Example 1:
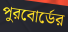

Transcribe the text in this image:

পুরবোর্ডের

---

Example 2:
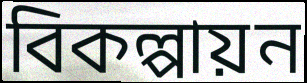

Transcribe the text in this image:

বিকল্পায়ন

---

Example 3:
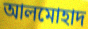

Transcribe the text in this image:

আলমোহাদ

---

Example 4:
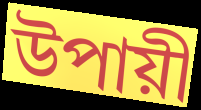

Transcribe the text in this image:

উপায়ী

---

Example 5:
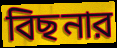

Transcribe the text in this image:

বিছনার